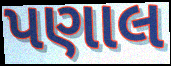
પણાલ